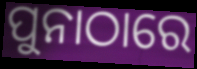
ପୁନାଠାରେ